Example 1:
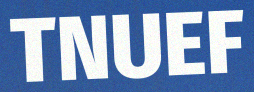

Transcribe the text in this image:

TNUEF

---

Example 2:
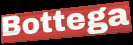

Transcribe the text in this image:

Bottega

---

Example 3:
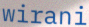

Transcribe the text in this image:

wirani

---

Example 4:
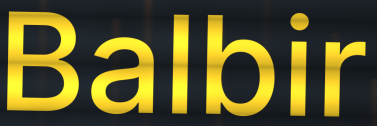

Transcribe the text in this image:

Balbir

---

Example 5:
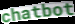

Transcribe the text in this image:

chatbot